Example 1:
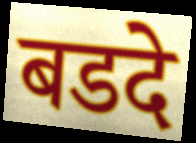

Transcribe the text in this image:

बडदे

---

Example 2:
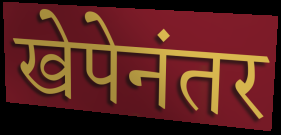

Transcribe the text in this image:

खेपेनंतर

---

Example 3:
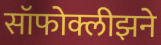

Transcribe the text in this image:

सॉफोक्लीझने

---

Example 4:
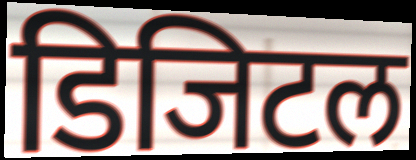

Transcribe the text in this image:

डिजिटल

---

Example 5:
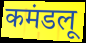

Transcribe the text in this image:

कमंडलू